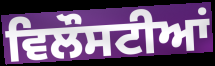
ਵਿਲੌਸਟੀਆਂ